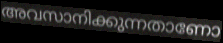
അവസാനിക്കുന്നതാണോ